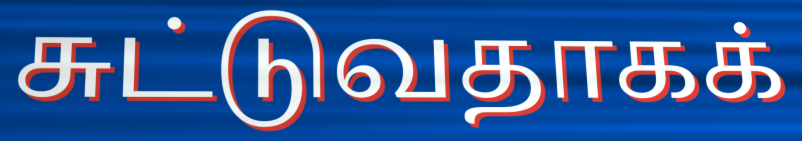
சுட்டுவதாகக்